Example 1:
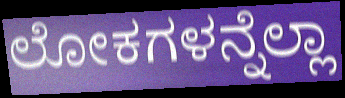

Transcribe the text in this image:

ಲೋಕಗಳನ್ನೆಲ್ಲಾ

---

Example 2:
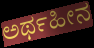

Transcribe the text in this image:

ಅರ್ಥಹೀನ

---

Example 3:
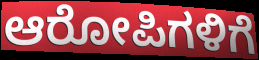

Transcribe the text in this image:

ಆರೋಪಿಗಳಿಗೆ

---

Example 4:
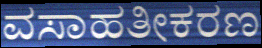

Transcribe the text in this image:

ವಸಾಹತೀಕರಣ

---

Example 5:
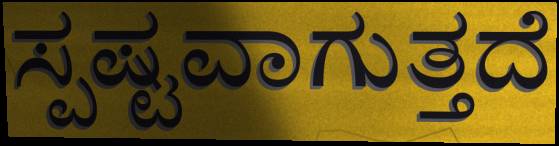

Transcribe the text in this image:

ಸ್ಪಷ್ಟವಾಗುತ್ತದೆ